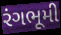
રંગભૂમી